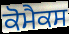
ਕੋਮੈਕਸ